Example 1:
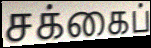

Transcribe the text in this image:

சக்கைப்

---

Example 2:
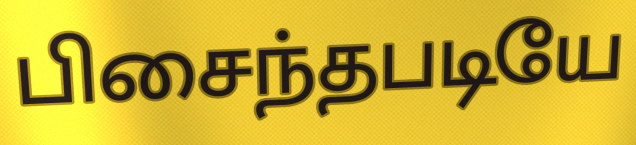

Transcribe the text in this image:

பிசைந்தபடியே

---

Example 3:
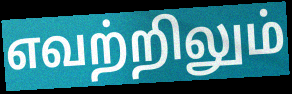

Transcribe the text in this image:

எவற்றிலும்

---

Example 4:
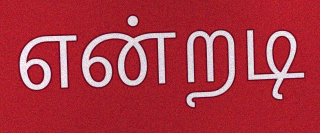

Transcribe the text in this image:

என்றடி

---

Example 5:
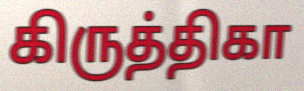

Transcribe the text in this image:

கிருத்திகா